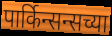
पार्किन्सन्सच्या